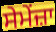
ਸੇਮੇਂਜ਼ਾ